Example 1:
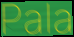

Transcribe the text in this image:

Pala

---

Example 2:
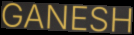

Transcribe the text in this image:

GANESH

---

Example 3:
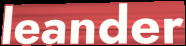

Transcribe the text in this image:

leander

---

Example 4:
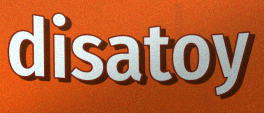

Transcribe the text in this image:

disatoy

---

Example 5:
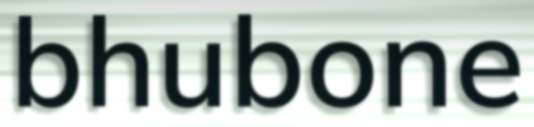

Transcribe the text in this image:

bhubone